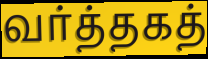
வர்த்தகத்